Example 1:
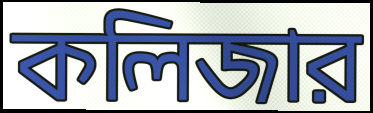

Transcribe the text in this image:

কলিজার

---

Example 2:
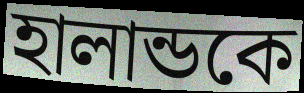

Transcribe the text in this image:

হালান্ডকে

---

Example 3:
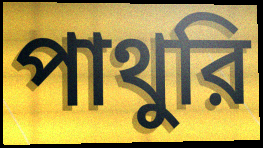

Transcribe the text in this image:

পাথুরি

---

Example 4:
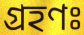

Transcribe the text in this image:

গ্রহণঃ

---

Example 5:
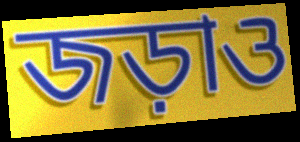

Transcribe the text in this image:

জড়াও